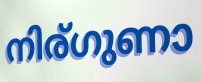
നിര്ഗുണാ